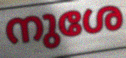
നുശേ